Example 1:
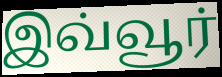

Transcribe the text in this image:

இவ்வூர்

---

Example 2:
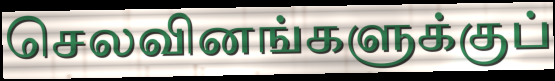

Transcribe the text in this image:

செலவினங்களுக்குப்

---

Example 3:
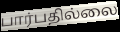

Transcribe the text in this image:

பார்பதில்லை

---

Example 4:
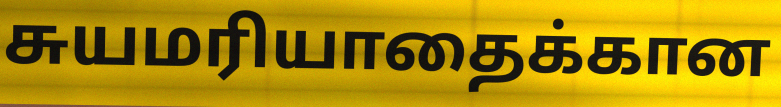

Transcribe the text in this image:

சுயமரியாதைக்கான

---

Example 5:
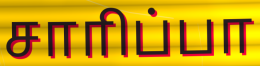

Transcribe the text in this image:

சாரிப்பா